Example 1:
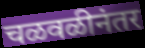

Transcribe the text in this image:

चळवळीनंतर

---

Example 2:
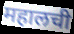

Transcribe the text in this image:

महालची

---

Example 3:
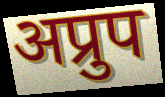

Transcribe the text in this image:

अप्रुप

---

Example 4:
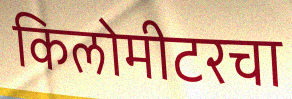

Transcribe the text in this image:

किलोमीटरचा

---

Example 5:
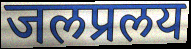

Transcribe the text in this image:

जलप्रलय